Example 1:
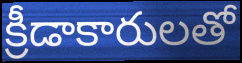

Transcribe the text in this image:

క్రీడాకారులతో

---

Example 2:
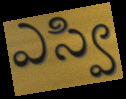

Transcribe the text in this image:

ఎస్వి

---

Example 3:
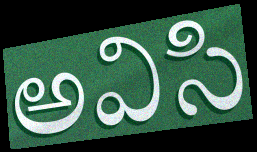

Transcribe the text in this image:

అవిసి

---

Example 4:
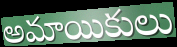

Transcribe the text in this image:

అమాయికులు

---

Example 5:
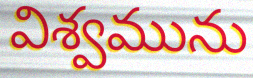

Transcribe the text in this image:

విశ్వమును